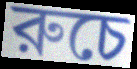
রুচে